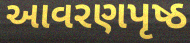
આવરણપૃષ્ઠ